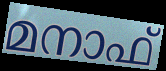
മനാഫ്